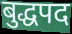
बुद्धपद